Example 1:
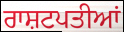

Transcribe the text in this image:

ਰਾਸ਼ਟਪਤੀਆਂ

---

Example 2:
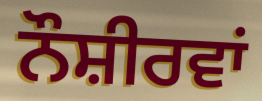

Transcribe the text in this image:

ਨੌਸ਼ੀਰਵਾਂ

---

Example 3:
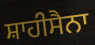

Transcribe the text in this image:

ਸ਼ਾਹੀਸੈਨਾ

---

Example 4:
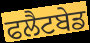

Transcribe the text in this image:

ਫਲੈਟਬੇਡ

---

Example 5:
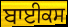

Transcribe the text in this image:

ਬਾਈਕਸ